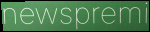
newspremi